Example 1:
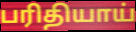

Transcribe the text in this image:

பரிதியாய்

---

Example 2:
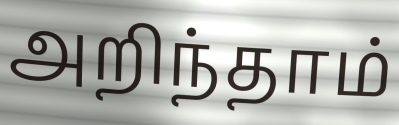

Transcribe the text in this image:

அறிந்தாம்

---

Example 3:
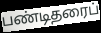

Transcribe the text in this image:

பண்டிதரைப்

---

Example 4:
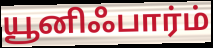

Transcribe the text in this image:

யூனிஃபார்ம்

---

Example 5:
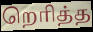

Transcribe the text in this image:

றெரித்த